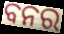
ବନର